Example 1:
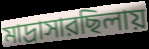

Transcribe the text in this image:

মাদ্রাসারছিলায়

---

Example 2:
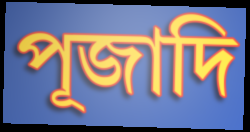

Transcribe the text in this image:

পূজাদি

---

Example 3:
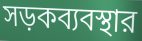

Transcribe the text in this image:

সড়কব্যবস্থার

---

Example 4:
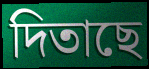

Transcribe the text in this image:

দিতাছে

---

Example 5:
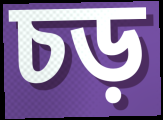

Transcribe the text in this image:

চড়